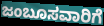
ಜಂಬೂಸವಾರಿಗೆ